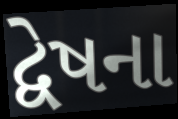
દ્વેષના